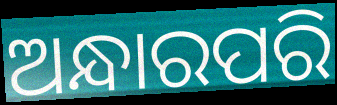
ଅନ୍ଧାରପରି